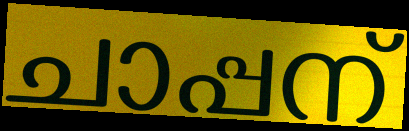
ചാപ്പന്